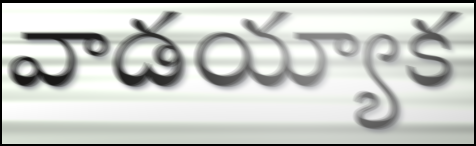
వాడయ్యాక